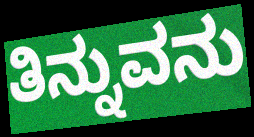
ತಿನ್ನುವನು